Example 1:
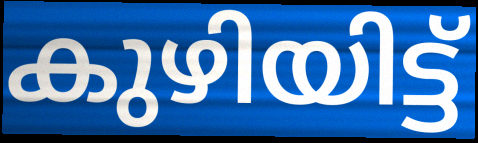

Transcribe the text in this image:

കുഴിയിട്ട്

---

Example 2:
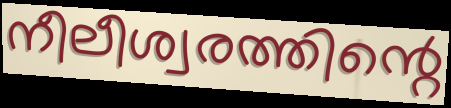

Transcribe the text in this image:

നീലീശ്വരത്തിന്റെ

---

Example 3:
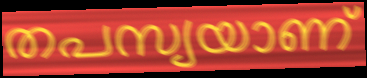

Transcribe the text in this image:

തപസ്യയാണ്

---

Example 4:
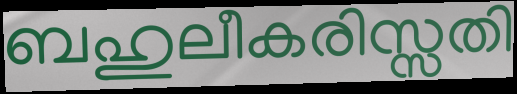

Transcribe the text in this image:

ബഹുലീകരിസ്സതി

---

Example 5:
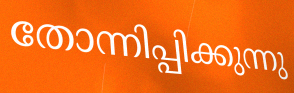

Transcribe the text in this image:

തോന്നിപ്പിക്കുന്നു